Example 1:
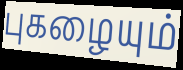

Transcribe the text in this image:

புகழையும்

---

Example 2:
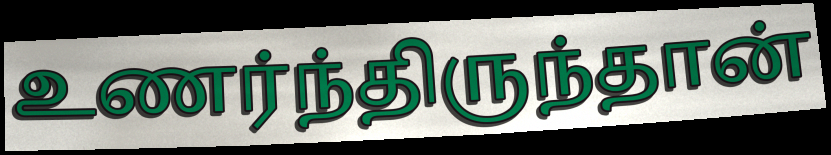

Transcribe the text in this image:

உணர்ந்திருந்தான்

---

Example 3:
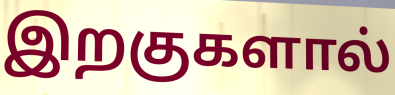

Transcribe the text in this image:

இறகுகளால்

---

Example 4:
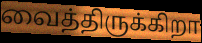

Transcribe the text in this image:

வைத்திருக்கிறா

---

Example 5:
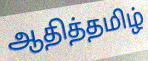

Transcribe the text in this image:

ஆதித்தமிழ்